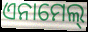
ଏନାମେଲ୍